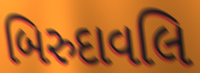
બિરુદાવલિ